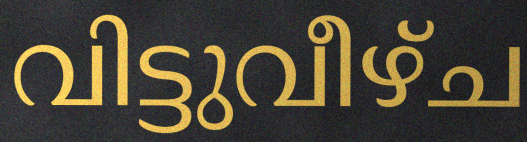
വിട്ടുവീഴ്ച